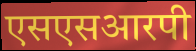
एसएसआरपी